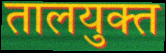
तालयुक्त